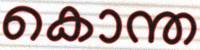
കൊന്ത